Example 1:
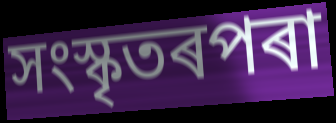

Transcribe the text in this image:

সংস্কৃতৰপৰা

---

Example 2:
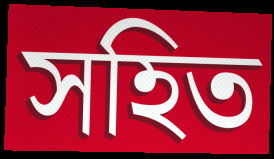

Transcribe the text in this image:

সহিত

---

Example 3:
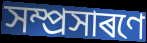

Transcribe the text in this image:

সম্প্ৰসাৰণে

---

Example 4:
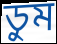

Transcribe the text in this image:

ডুম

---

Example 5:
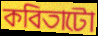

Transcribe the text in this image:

কবিতাটো